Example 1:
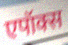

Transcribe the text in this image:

एपॉक्स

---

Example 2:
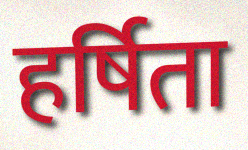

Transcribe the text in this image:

हर्षिता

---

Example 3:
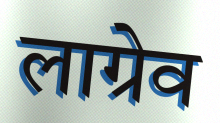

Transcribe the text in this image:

लाग्रेव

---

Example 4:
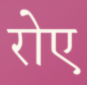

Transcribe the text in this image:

रोए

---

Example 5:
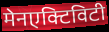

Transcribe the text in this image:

मेनएक्टिविटी